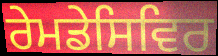
ਰੇਮਡੇਸਿਵਿਰ